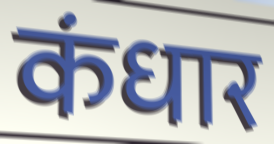
कंधार